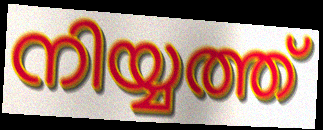
നിയ്യത്ത്